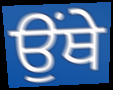
ਉੰਥੇ